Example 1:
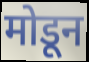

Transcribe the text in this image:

मोडून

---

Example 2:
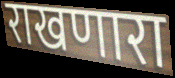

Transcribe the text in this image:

राखणारा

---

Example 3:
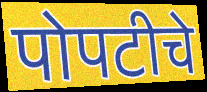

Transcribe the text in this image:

पोपटीचे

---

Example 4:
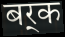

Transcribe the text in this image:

बर्क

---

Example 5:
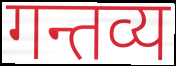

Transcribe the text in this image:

गन्तव्य